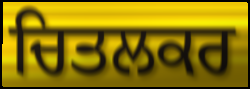
ਚਿਤਲਕਰ